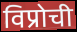
विप्रोची